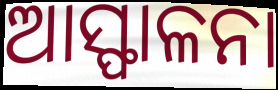
ଆସ୍ଫାଳନା